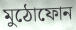
মুঠোফোন